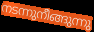
നടന്നുനീങ്ങുന്നു